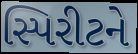
સ્પિરીટને